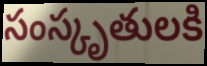
సంస్కృతులకి